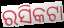
ରସିକଟା